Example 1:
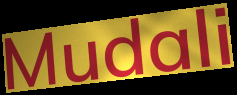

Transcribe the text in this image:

Mudali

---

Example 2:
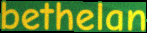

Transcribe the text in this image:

bethelan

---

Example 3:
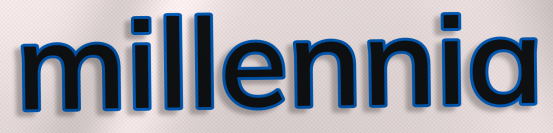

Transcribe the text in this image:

millennia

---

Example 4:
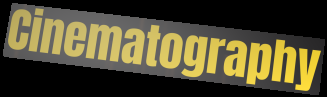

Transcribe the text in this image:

Cinematography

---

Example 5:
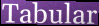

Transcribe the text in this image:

Tabular